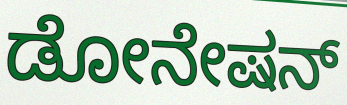
ಡೋನೇಷನ್